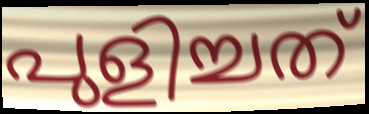
പുളിച്ചത്